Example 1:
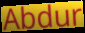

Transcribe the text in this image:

Abdur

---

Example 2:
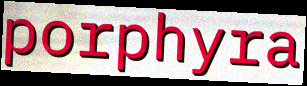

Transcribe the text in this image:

porphyra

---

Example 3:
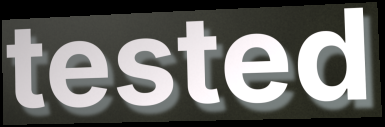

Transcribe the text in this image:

tested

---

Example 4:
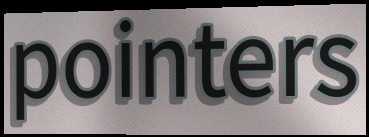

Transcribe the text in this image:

pointers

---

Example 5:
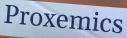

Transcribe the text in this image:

Proxemics